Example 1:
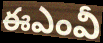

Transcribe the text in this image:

ఈఎంవీ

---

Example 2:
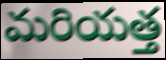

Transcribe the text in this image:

మరియత్త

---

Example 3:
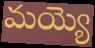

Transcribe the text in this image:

మయ్యె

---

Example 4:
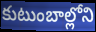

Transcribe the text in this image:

కుటుంబాల్లోని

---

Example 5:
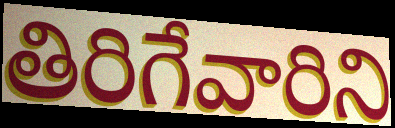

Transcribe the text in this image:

తిరిగేవారిని